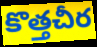
కొత్తచీర